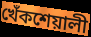
খেঁকশেয়ালী